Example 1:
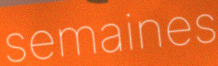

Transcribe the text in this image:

semaines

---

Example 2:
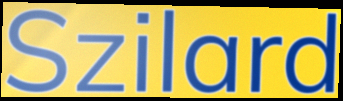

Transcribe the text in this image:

Szilard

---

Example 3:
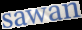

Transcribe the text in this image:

sawan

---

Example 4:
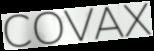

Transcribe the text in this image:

COVAX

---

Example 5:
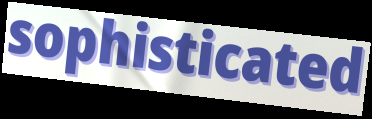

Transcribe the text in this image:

sophisticated